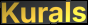
Kurals